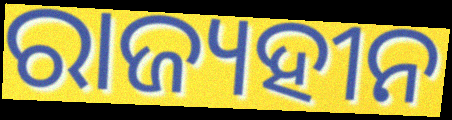
ରାଜ୍ୟହୀନ